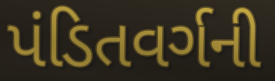
પંડિતવર્ગની